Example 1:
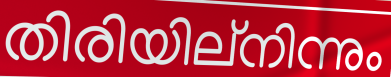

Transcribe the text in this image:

തിരിയില്നിന്നും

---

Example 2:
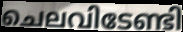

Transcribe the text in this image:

ചെലവിടേണ്ടി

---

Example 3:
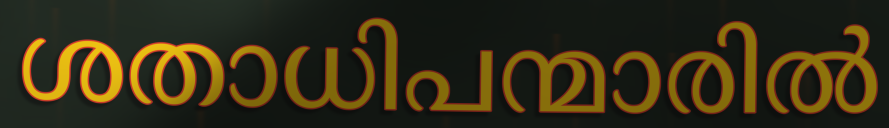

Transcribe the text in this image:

ശതാധിപന്മാരിൽ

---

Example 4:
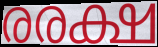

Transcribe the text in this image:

രരക്ഷ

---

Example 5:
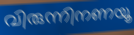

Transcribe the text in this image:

വിരുന്നിനണയൂ